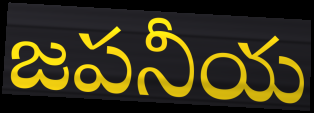
జపనీయ